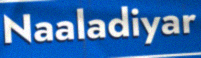
Naaladiyar